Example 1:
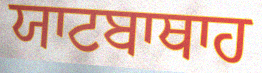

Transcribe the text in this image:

ਯਾਟਬਾਥਾਹ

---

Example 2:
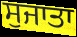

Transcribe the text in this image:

ਸੁਜਾਤਾ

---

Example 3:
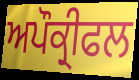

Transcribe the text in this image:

ਅਪੌਕ੍ਰੀਫਲ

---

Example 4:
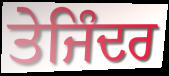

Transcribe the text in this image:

ਤੇਜਿੰਦਰ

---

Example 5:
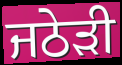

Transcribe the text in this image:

ਜਠੇੜੀ